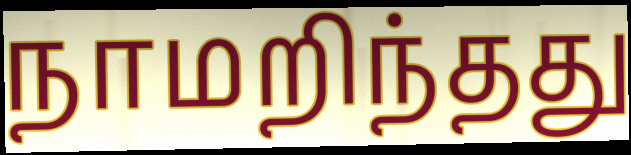
நாமறிந்தது